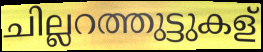
ചില്ലറത്തുട്ടുകള്